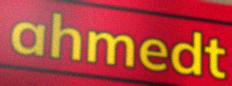
ahmedt